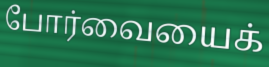
போர்வையைக்